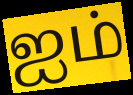
ஐம்